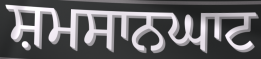
ਸ਼ਮਸਾਨਘਾਟ